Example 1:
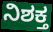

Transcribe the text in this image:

ನಿಶಕ್ತ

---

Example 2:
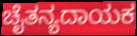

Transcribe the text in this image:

ಚೈತನ್ಯದಾಯಕ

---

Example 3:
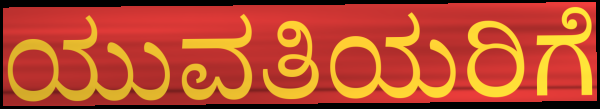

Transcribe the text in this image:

ಯುವತಿಯರಿಗೆ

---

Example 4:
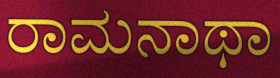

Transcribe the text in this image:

ರಾಮನಾಥಾ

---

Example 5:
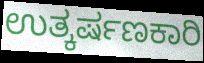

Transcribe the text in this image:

ಉತ್ಕರ್ಷಣಕಾರಿ